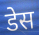
डेस